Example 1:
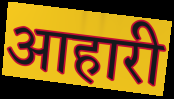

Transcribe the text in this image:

आहारी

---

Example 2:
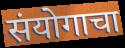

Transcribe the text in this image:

संयोगाचा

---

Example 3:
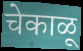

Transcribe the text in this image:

चेकाळू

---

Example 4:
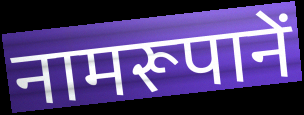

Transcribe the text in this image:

नामरूपानें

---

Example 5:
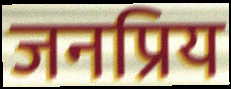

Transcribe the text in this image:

जनप्रिय